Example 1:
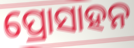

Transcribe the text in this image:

ପ୍ରୋସାହନ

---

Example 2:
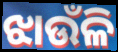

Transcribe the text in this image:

ଝାଉଁଳି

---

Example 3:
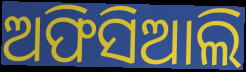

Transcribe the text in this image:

ଅଫିସିଆଲି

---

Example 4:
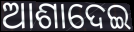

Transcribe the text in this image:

ଆଶାଦେଇ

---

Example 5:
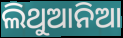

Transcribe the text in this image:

ଲିଥୁଆନିଆ